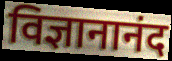
विज्ञानानंद